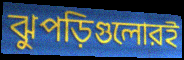
ঝুপড়িগুলোরই